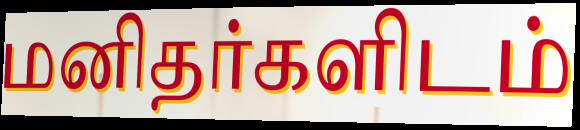
மனிதர்களிடம்